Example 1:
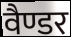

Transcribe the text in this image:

वैण्डर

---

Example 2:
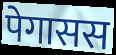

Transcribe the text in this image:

पेगासस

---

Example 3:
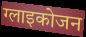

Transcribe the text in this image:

ग्लाइकोजन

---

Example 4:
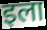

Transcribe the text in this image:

इला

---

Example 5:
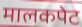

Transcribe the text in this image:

मालकपेट